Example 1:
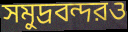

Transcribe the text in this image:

সমুদ্রবন্দরও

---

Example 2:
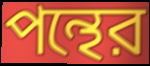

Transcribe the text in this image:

পন্থের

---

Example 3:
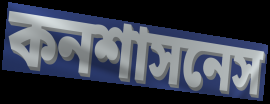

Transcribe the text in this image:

কনশাসনেস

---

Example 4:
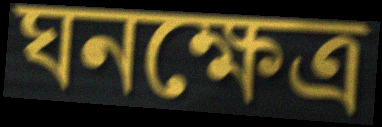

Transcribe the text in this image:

ঘনক্ষেত্র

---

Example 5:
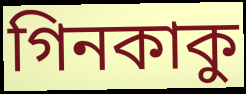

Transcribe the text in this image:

গিনকাকু